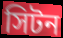
সিটন